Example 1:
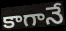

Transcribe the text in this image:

కాగానే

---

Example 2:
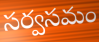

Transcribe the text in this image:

సర్వసమం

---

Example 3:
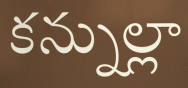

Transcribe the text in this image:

కన్నుల్లా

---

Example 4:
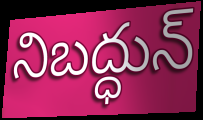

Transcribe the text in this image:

నిబద్ధున్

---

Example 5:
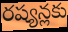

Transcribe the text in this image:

రష్యన్లకు